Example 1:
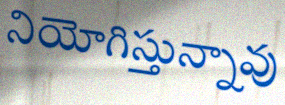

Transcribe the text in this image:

నియోగిస్తున్నావు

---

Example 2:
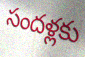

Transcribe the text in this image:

సందళ్లకు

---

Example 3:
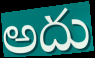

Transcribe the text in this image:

అదు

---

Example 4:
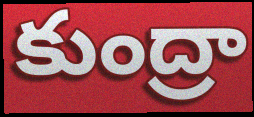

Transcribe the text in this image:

కుంద్రా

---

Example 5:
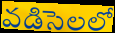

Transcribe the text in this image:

వడిసెలలో